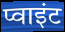
प्‍वाइंट